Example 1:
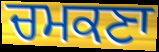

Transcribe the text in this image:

ਚਮਕਣਾ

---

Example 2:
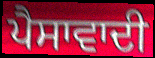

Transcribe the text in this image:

ਪੈਸਾਵਾਦੀ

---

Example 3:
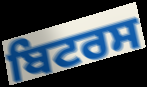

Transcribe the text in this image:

ਬਿਟਰਸ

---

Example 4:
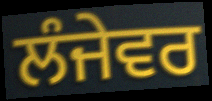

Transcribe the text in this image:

ਲੰਜੇਵਰ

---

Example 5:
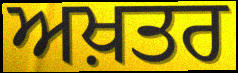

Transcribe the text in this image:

ਅਖ਼ਤਰ